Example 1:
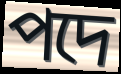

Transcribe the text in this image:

পদে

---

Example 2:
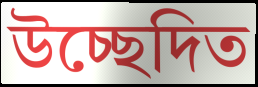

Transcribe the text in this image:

উচ্ছেদিত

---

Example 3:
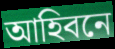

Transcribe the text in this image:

আহিবনে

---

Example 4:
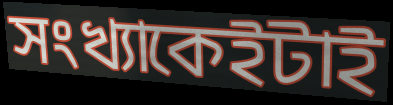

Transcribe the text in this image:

সংখ্যাকেইটাই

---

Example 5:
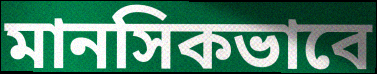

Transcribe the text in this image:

মানসিকভাবে